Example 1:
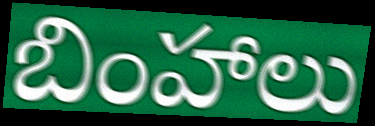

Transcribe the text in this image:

బింహాలు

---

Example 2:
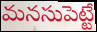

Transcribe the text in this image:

మనసుపెట్టే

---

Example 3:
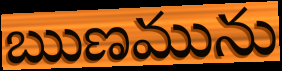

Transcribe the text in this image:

ఋణమును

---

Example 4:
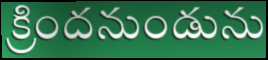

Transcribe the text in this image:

క్రిందనుండును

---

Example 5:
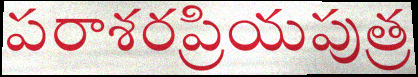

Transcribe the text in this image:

పరాశరప్రియపుత్ర